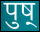
पुष्